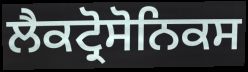
ਲੈਕਟ੍ਰੋਸੋਨਿਕਸ